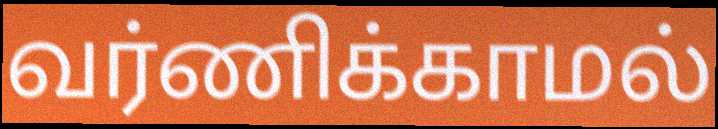
வர்ணிக்காமல்